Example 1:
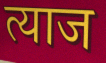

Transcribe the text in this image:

त्याज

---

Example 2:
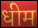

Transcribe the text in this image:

धीम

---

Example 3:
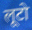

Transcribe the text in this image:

लूटो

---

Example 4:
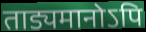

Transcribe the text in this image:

ताड्यमानोऽपि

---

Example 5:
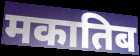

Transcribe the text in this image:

मकातिब